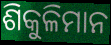
ଶିକୁଳିମାନ